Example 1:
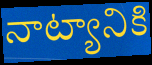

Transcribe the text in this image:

నాట్యానికి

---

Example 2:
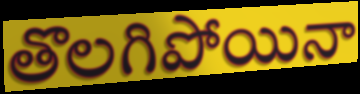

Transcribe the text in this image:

తొలగిపోయినా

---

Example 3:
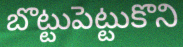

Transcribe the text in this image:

బొట్టుపెట్టుకొని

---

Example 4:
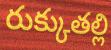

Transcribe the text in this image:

రుక్కుతల్లి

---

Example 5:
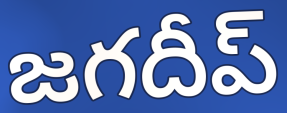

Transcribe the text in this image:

జగదీప్